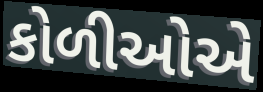
કોળીઓએ